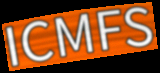
ICMFS